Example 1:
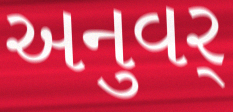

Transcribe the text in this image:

અનુવર્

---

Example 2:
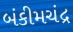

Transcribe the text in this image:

બંકીમચંદ્ર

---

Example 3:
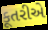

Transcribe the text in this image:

કૂતરીએ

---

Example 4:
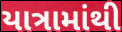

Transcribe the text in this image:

યાત્રામાંથી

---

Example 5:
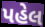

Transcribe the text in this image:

પહેલ